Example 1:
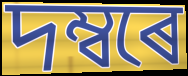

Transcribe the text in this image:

দম্বৰে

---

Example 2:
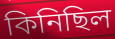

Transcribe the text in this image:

কিনিছিল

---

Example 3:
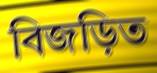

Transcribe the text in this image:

বিজড়িত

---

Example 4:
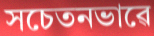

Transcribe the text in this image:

সচেতনভাৱে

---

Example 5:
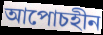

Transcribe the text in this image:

আপোচহীন